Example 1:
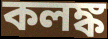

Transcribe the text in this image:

কলঙ্ক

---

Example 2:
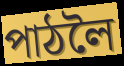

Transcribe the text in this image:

পাঠলৈ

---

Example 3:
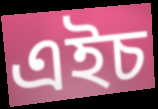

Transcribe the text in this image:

এইচ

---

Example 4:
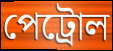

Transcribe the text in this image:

পেট্ৰোল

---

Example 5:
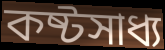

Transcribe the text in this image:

কষ্টসাধ্য